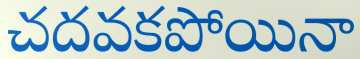
చదవకపోయినా